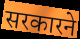
सरकारने